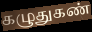
கழுதுகண்